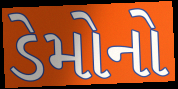
ડેમોનો